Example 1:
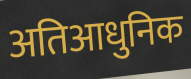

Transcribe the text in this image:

अतिआधुनिक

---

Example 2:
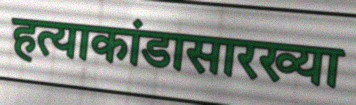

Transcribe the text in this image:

हत्याकांडासारख्या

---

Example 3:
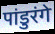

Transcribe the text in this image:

पांडुरंगे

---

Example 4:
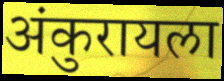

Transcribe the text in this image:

अंकुरायला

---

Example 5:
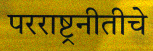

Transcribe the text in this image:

परराष्ट्रनीतीचे